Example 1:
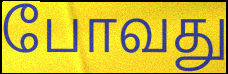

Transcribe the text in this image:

போவது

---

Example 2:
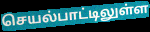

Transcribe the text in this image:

செயல்பாட்டிலுள்ள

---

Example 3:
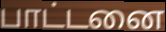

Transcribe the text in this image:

பாட்டனை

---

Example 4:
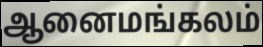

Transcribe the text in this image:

ஆனைமங்கலம்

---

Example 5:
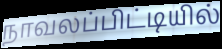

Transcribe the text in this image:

நாவலப்பிட்டியில்